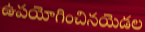
ఉపయోగించినయెడల